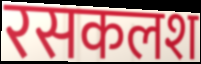
रसकलश